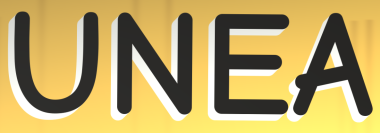
UNEA